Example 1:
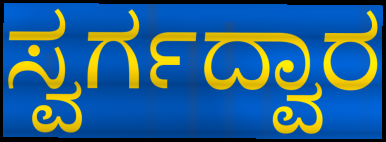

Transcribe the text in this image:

ಸ್ವರ್ಗದ್ವಾರ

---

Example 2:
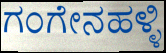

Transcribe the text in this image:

ಗಂಗೇನಹಳ್ಳಿ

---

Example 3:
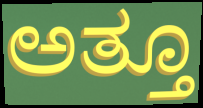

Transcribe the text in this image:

ಅತ್ತೂ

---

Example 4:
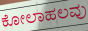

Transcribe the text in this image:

ಕೋಲಾಹಲವು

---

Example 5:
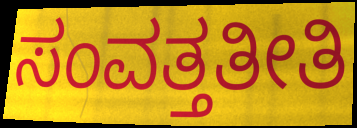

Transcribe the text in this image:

ಸಂವತ್ತತೀತಿ